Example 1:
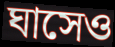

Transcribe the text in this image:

ঘাসেও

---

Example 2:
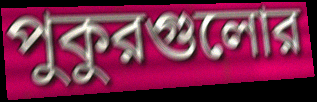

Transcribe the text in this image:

পুকুরগুলোর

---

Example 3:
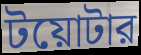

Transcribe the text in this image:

টয়োটার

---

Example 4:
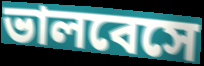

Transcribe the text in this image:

ভালবেসে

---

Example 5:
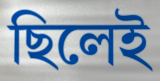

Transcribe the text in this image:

ছিলেই